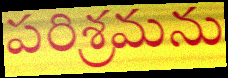
పరిశ్రమను